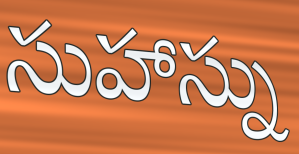
సుహాస్ను